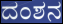
ದಂಶನ